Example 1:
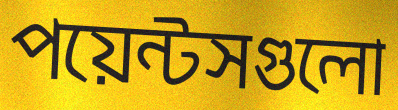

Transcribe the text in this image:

পয়েন্টসগুলো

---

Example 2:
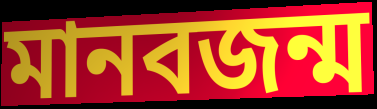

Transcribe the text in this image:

মানবজন্ম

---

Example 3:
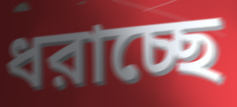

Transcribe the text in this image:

ধরাচ্ছে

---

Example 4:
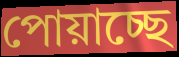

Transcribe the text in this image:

পোয়াচ্ছে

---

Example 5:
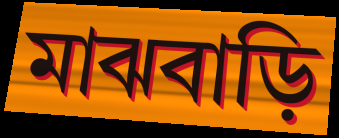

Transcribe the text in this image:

মাঝবাড়ি